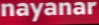
nayanar